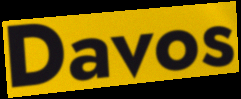
Davos